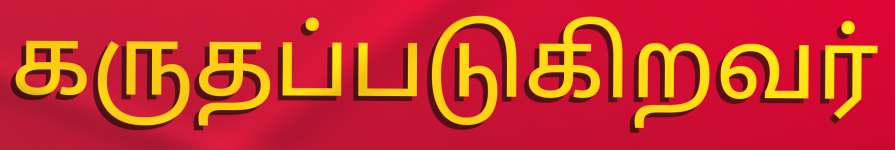
கருதப்படுகிறவர்